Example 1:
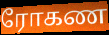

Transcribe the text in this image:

ரோகண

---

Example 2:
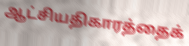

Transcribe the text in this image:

ஆட்சியதிகாரத்தைக்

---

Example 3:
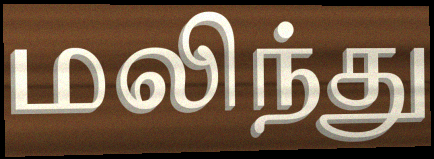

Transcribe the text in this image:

மலிந்து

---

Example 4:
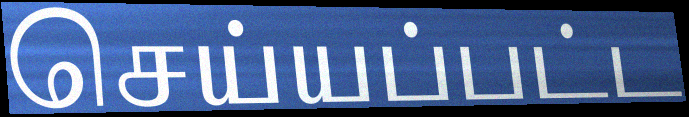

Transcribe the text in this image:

செய்யப்பட்ட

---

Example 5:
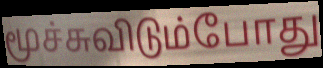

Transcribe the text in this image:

மூச்சுவிடும்போது